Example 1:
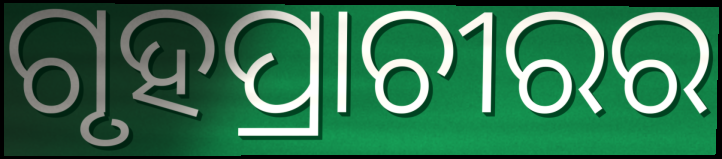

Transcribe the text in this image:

ଗୃହପ୍ରାଚୀରର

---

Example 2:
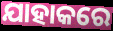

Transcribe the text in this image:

ଯାହାକରେ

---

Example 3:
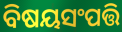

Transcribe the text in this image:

ବିଷୟସଂପତ୍ତି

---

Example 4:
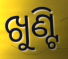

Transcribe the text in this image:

ଖୁଣ୍ଟି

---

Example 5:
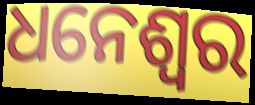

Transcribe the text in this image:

ଧନେଶ୍ବର